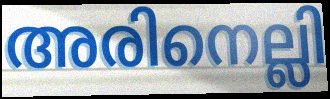
അരിനെല്ലി